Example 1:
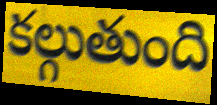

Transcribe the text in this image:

కల్గుతుంది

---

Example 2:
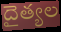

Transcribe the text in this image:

దైత్యల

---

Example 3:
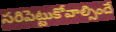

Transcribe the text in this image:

సరిపెట్టుకోవాల్సిందే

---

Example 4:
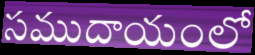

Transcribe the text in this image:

సముదాయంలో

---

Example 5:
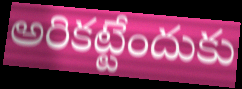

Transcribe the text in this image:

అరికట్టేందుకు